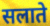
सलाते